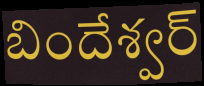
బిందేశ్వర్